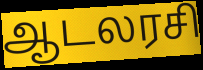
ஆடலரசி